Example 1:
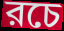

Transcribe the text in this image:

রচে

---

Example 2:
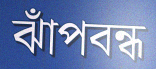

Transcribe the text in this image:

ঝাঁপবন্ধ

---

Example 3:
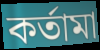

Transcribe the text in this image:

কর্তামা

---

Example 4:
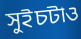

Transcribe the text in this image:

সুইচটাও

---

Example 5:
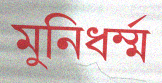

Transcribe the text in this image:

মুনিধর্ম্ম